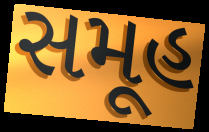
સમૂહ